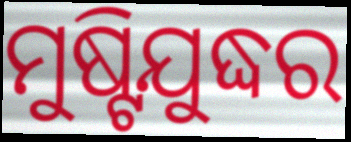
ମୁଷ୍ଟିଯୁଦ୍ଧର